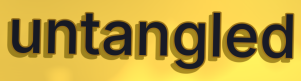
untangled